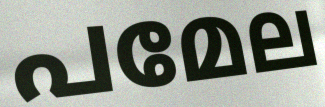
പമേല